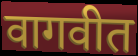
वागवीत